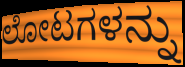
ಲೋಟಗಳನ್ನು